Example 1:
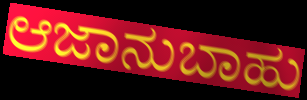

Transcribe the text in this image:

ಆಜಾನುಬಾಹು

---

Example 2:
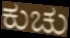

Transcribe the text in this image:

ಕುಚು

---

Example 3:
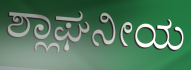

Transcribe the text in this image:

ಶ್ಲಾಘನೀಯ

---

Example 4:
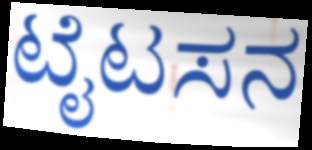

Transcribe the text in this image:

ಟೈಟಸನ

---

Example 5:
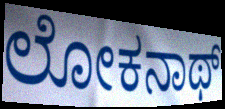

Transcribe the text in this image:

ಲೋಕನಾಥ್